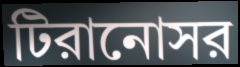
টিরানোসর